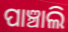
ପାଞ୍ଚାଲି